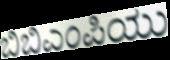
ಬಿಬಿಎಂಪಿಯು